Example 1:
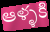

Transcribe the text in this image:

ఆళ్ళకి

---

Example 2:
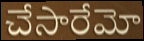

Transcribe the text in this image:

చేసారేమో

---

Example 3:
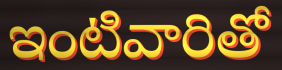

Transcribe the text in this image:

ఇంటివారితో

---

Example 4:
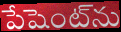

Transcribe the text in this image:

పేషెంట్‌ను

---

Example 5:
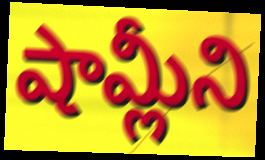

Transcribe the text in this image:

షామ్లీని